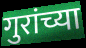
गुरांच्या